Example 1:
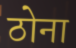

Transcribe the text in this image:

ठोना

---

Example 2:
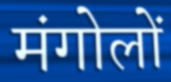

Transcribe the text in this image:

मंगोलों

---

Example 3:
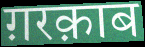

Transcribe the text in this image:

ग़रक़ाब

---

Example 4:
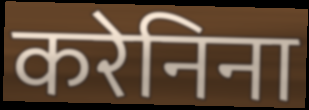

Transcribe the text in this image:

करेनिना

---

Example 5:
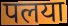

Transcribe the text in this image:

पलया